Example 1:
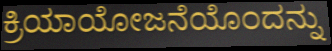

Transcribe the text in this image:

ಕ್ರಿಯಾಯೋಜನೆಯೊಂದನ್ನು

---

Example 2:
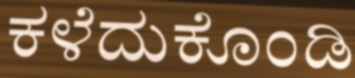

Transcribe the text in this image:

ಕಳೆದುಕೊಂಡಿ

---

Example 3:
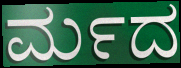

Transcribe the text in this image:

ರ್ಮದ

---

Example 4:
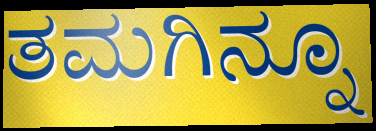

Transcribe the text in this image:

ತಮಗಿನ್ನೂ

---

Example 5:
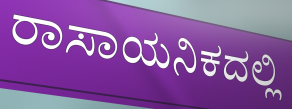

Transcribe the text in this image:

ರಾಸಾಯನಿಕದಲ್ಲಿ